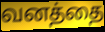
வனத்தை